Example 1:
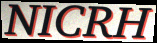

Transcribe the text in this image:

NICRH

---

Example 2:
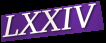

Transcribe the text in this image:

LXXIV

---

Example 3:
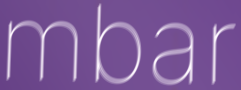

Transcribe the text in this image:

mbar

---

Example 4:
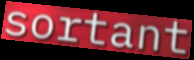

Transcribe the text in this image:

sortant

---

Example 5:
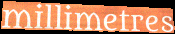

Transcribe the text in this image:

millimetres